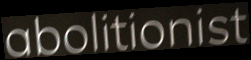
abolitionist